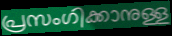
പ്രസംഗിക്കാനുള്ള